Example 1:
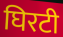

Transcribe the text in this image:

घिरटी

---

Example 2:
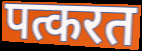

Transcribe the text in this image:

पत्करत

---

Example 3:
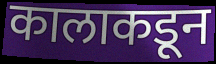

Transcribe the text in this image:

कालाकडून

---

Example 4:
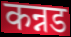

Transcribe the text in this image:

कन्नड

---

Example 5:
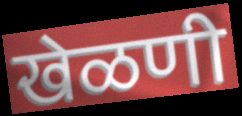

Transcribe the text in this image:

खेळणी